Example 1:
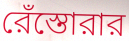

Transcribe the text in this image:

রেঁস্তোরার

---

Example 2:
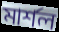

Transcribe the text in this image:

মার্শল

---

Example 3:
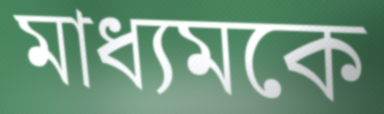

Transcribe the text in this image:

মাধ্যমকে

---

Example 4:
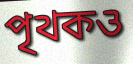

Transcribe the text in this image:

পৃথকও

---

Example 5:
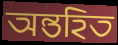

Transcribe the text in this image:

অন্তহিত